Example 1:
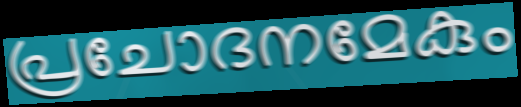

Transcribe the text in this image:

പ്രചോദനമേകും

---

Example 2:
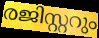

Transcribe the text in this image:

രജിസ്റ്ററും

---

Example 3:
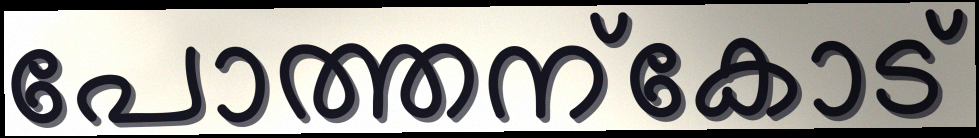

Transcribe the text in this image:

പോത്തന്കോട്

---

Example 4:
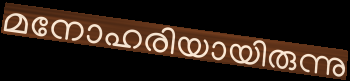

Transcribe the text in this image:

മനോഹരിയായിരുന്നു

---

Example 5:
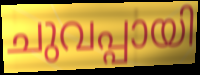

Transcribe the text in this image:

ചുവപ്പായി